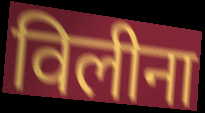
विलीना